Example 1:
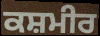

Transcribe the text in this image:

ਕਸ਼ਮੀਰ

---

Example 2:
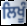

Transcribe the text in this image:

ਲਿਖੂੰ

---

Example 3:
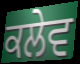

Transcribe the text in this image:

ਕਲੇਵ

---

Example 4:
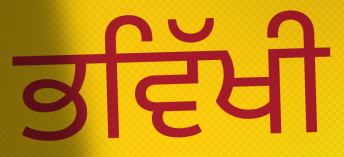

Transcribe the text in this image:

ਭਵਿੱਖੀ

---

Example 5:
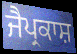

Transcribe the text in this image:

ਜੈਪ੍ਰਕਾਸ਼